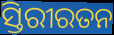
ସ୍ତିରୀରତନ